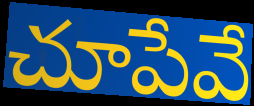
చూపేవే